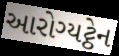
આરોગ્યટ્ઠેન